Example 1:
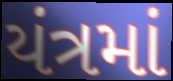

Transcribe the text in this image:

યંત્રમાં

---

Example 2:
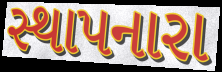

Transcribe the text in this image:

સ્થાપનારા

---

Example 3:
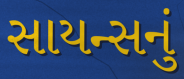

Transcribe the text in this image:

સાયન્સનું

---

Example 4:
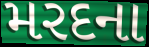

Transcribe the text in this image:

મરદના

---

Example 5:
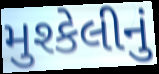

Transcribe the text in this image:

મુશ્કેલીનું